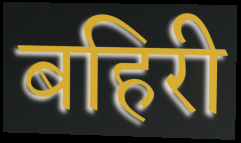
बहिरी